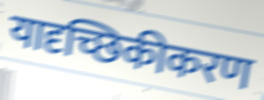
यादृच्छिकीकरण